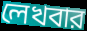
লেখবার